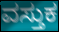
ವಸ್ತುಕ